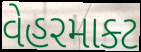
વેહરમાક્ટ